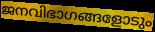
ജനവിഭാഗങ്ങളോടും